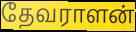
தேவராளன்